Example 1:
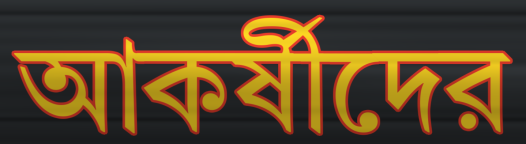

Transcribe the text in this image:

আকর্ষীদের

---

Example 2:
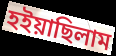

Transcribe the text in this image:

হইয়াছিলাম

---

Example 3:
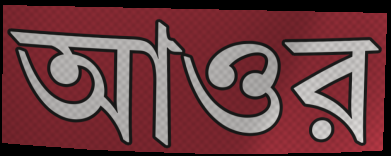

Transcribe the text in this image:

আওর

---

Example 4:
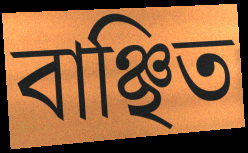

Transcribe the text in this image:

বাঞ্ছিত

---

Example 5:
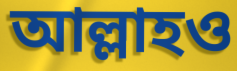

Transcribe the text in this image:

আল্লাহও